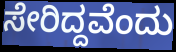
ಸೇರಿದ್ದವೆಂದು